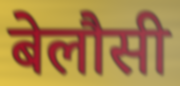
बेलौसी